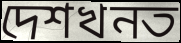
দেশখনত